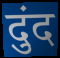
दुंद